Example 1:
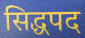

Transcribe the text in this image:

सिद्धपद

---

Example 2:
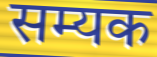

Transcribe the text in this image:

सम्यक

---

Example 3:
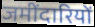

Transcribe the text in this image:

जमींदारियों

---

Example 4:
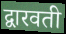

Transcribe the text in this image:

द्वारवती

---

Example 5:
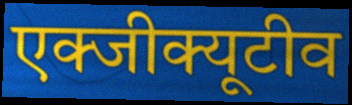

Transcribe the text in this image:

एक्जीक्यूटीव